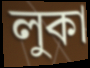
লুকা